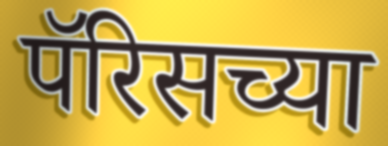
पॅरिसच्या